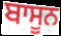
ਬਾਸੂਨ